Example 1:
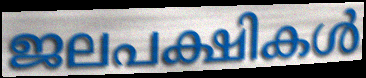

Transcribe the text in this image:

ജലപക്ഷികൾ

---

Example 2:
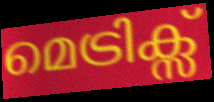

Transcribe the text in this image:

മെട്രിക്സ്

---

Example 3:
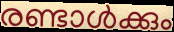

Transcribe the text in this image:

രണ്ടാൾക്കും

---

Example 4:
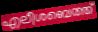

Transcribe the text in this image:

എലീശബെത്ത്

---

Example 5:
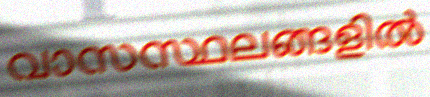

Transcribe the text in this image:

വാസസ്ഥലങ്ങളിൽ